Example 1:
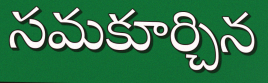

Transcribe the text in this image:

సమకూర్చిన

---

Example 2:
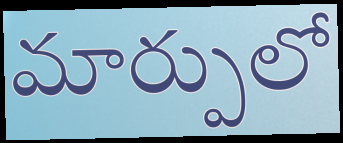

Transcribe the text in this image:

మార్పులో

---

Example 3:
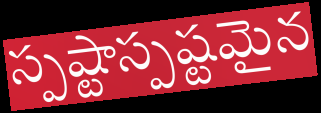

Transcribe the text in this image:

స్పష్టాస్పష్టమైన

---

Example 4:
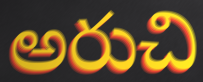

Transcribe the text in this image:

అరుచి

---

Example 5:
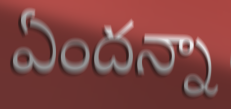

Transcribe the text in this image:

ఏందన్నా